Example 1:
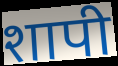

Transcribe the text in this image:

शापी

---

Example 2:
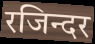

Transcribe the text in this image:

रजिन्दर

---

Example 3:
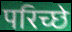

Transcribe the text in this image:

परिच्छे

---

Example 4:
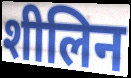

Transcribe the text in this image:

शीलिन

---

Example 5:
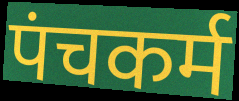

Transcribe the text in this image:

पंचकर्म